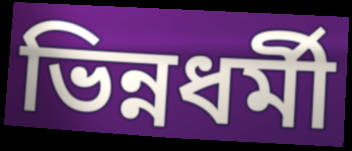
ভিন্নধৰ্মী